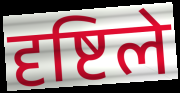
दृष्टिले